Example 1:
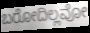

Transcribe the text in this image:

ಬರೋದಿಲ್ಲವೋ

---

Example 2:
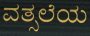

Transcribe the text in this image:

ವತ್ಸಲೆಯ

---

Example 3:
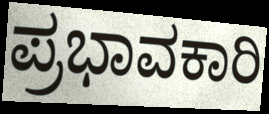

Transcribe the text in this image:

ಪ್ರಭಾವಕಾರಿ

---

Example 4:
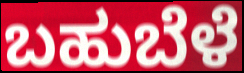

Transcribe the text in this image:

ಬಹುಬೆಳೆ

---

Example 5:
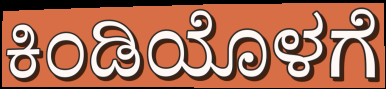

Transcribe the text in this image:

ಕಿಂಡಿಯೊಳಗೆ